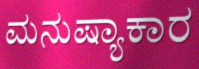
ಮನುಷ್ಯಾಕಾರ